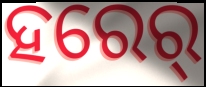
ହରେର୍